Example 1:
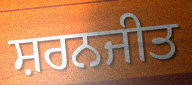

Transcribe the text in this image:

ਸ਼ਰਨਜੀਤ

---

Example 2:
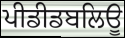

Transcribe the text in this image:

ਪੀਡੀਡਬਲਿਊ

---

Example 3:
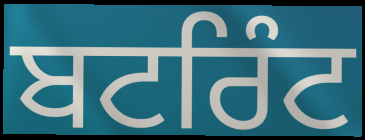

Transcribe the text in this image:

ਬਟਰਿੰਟ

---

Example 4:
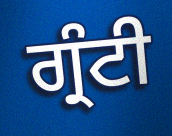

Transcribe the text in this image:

ਗ੍ਰੰਟੀ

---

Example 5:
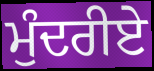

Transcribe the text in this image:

ਮੁੰਦਰੀਏ